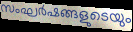
സംഘർഷങ്ങളുടെയും